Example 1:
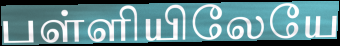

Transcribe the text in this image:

பள்ளியிலேயே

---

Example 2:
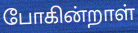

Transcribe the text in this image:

போகின்றாள்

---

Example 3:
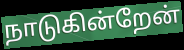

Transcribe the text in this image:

நாடுகின்றேன்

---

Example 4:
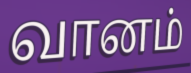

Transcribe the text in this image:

வானம்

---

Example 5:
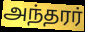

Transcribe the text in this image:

அந்தரர்